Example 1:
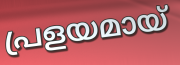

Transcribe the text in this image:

പ്രളയമായ്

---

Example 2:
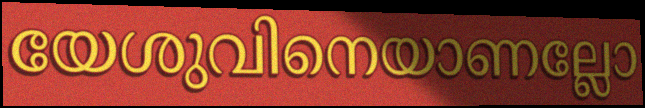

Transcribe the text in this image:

യേശുവിനെയാണല്ലോ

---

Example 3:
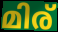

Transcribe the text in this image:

മിര്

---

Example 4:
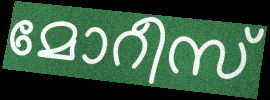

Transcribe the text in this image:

മോറീസ്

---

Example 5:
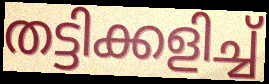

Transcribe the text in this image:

തട്ടിക്കളിച്ച്